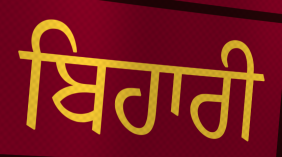
ਬਿਹਾਰੀ